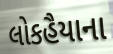
લોકહૈયાના